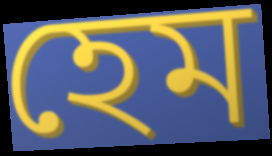
হেম